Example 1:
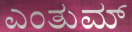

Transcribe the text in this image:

ಎಂತುಮ್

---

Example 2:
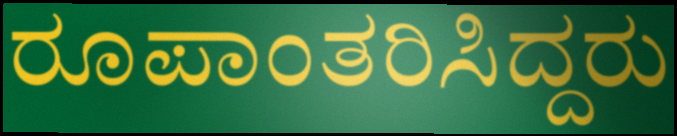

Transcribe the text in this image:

ರೂಪಾಂತರಿಸಿದ್ದರು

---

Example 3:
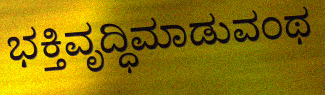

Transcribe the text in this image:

ಭಕ್ತಿವೃದ್ಧಿಮಾಡುವಂಥ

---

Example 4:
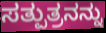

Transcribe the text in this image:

ಸತ್ಪುತ್ರನನ್ನು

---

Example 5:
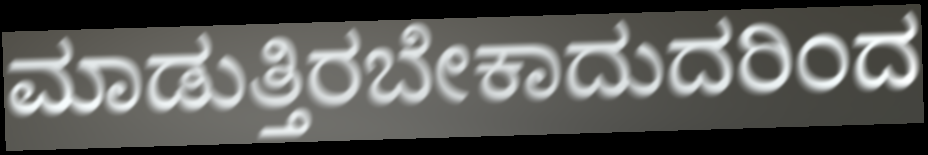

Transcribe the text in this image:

ಮಾಡುತ್ತಿರಬೇಕಾದುದರಿಂದ